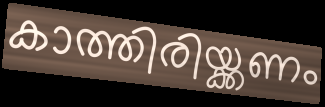
കാത്തിരിയ്ക്കണം